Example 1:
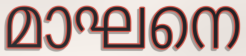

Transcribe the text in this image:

മാഘനെ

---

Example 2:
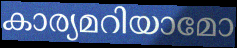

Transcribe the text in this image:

കാര്യമറിയാമോ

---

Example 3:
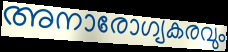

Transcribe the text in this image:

അനാരോഗ്യകരവും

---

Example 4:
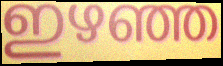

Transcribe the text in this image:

ഇഴഞ്ഞ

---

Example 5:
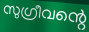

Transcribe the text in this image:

സുഗ്രീവന്റെ